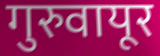
गुरुवायूर